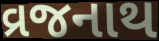
વ્રજનાથ